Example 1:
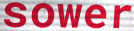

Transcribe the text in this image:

sower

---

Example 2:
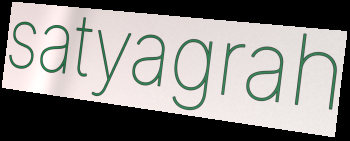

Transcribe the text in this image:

satyagrah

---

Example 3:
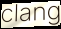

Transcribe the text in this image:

clang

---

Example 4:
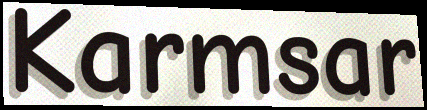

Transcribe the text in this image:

Karmsar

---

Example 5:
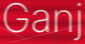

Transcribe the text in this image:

Ganj